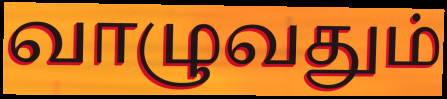
வாழுவதும்